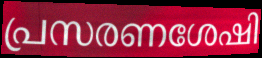
പ്രസരണശേഷി